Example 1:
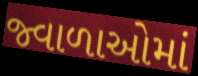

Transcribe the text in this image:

જ્વાળાઓમાં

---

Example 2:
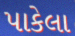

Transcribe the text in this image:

પાકેલા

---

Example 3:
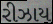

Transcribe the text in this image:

રીઝાય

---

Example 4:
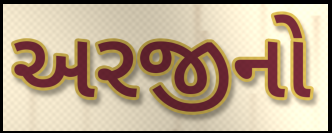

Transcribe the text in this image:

અરજીનો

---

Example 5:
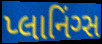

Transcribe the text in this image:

પ્લાનિંગ્સ